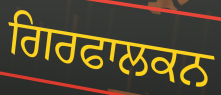
ਗਿਰਫਾਲਕਨ